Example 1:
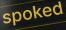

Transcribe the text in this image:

spoked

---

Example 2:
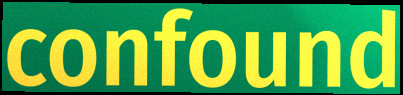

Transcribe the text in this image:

confound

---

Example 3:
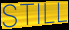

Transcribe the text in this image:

STILL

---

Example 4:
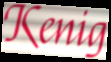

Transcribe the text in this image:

Kenig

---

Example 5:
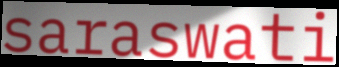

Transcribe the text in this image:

saraswati